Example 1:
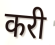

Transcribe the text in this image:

करी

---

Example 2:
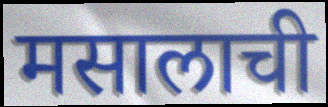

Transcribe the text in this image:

मसालाची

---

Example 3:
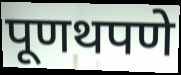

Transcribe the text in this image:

पूणथपणे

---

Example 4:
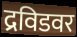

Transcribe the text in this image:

द्रविडवर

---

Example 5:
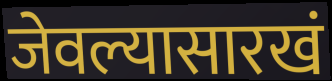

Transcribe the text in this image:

जेवल्यासारखं